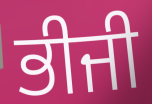
ਭੀਜੀ